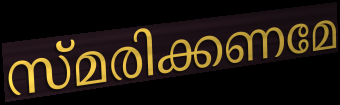
സ്മരിക്കണമേ